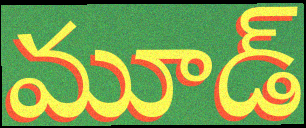
మూడ్